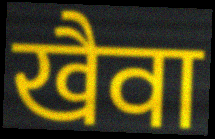
खैवा